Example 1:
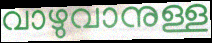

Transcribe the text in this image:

വാഴുവാനുള്ള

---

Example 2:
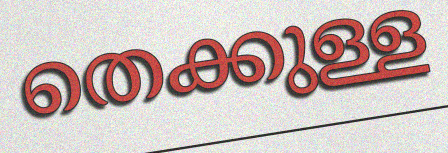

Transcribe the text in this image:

തെക്കുള്ള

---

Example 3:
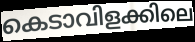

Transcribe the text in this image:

കെടാവിളക്കിലെ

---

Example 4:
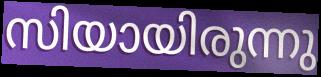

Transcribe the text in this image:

സിയായിരുന്നു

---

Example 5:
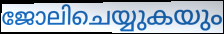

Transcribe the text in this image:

ജോലിചെയ്യുകയും